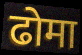
ढोमा